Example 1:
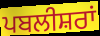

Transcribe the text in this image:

ਪਬਲੀਸ਼ਰਾਂ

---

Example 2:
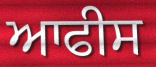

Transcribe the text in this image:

ਆਫੀਸ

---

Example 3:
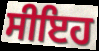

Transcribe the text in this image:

ਸੀਇਹ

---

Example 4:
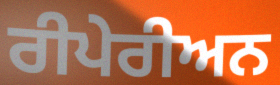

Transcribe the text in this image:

ਰੀਪੇਰੀਅਨ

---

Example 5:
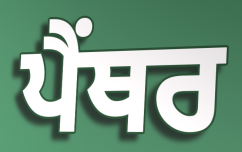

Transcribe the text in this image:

ਪੈੰਥਰ